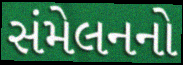
સંમેલનનો